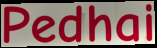
Pedhai